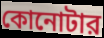
কোনোটার